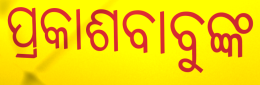
ପ୍ରକାଶବାବୁଙ୍କ